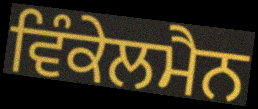
ਵਿੰਕੇਲਮੈਨ